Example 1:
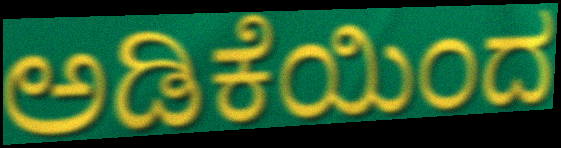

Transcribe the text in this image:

ಅಡಿಕೆಯಿಂದ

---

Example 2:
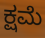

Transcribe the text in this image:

ಕ್ಷಮೆ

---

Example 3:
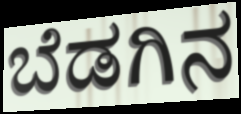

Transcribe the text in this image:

ಬೆಡಗಿನ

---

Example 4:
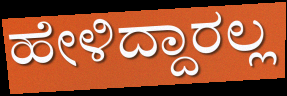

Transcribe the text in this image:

ಹೇಳಿದ್ದಾರಲ್ಲ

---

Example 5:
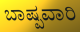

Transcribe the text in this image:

ಬಾಷ್ಪವಾರಿ